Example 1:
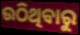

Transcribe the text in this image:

ଉଠିଥିବାରୁ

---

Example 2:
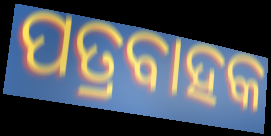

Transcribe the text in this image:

ପତ୍ରବାହକ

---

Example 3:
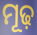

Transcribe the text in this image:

ମୂଢ଼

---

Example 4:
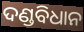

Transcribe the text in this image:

ଦଣ୍ଡବିଧାନ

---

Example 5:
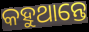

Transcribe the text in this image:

କହୁଥାନ୍ତେ